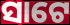
ସାଟେ